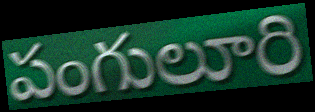
పంగులూరి